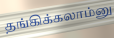
தங்கிக்கலாம்னு